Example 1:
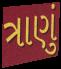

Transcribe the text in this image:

ત્રાણું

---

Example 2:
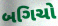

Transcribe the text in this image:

બગિચો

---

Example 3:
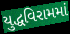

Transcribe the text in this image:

યુદ્ધવિરામમાં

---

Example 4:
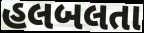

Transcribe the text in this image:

હલબલતા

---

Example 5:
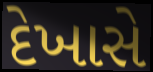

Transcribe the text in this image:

દેખાસે